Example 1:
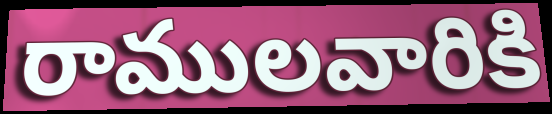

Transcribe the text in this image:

రాములవారికి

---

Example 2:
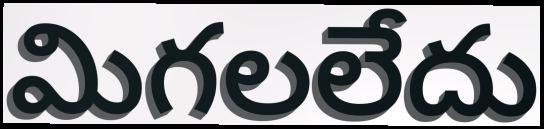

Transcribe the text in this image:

మిగలలేదు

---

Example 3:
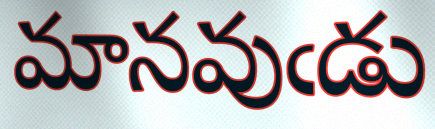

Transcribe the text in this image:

మానవుఁడు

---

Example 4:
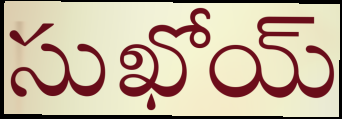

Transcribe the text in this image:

సుఖోయ్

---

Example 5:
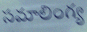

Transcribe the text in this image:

సమాలింగ్య